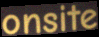
onsite